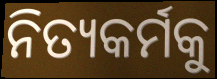
ନିତ୍ୟକର୍ମକୁ